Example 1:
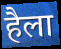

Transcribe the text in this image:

हैला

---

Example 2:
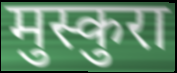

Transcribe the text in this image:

मुस्कुरा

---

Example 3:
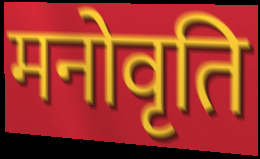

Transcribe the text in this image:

मनोवृति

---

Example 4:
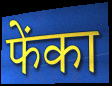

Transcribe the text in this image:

फेंका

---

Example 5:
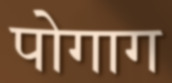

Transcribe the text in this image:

पोगाग